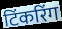
टिंकरिंग